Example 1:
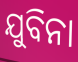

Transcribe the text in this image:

ଯୁବିନା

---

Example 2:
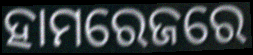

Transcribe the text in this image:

ହାମରେଜରେ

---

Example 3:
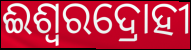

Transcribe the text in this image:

ଈଶ୍ଵରଦ୍ରୋହୀ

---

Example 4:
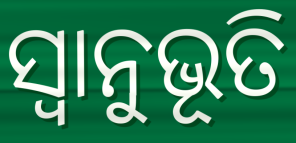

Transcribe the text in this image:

ସ୍ଵାନୁଭୂତି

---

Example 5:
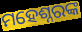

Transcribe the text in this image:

ମହେଶ୍ନରଙ୍କ